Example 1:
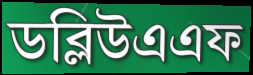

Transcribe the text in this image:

ডব্লিউএএফ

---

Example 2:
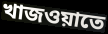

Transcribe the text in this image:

খাজওয়াতে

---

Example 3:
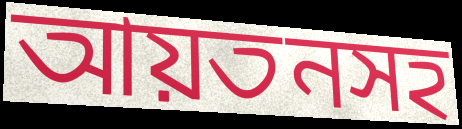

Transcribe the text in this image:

আয়তনসহ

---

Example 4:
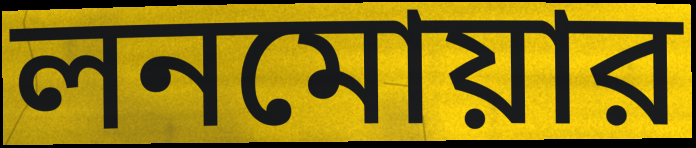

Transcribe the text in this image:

লনমোয়ার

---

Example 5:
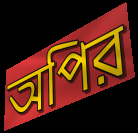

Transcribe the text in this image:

অপির